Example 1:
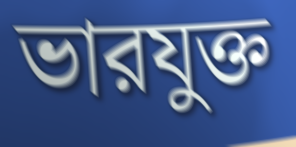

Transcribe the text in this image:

ভারযুক্ত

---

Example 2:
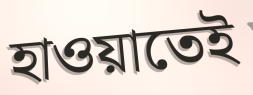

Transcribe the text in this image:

হাওয়াতেই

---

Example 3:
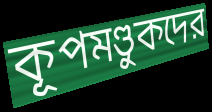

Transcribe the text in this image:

কূপমণ্ডুকদের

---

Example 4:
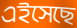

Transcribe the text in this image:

এইসেছে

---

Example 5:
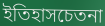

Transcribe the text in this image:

ইতিহাসচেতনা